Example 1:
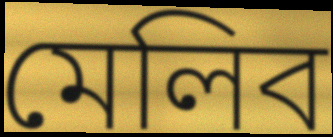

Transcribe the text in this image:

মেলিব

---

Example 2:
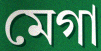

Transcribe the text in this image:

মেগা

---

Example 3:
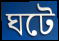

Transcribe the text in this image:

ঘটে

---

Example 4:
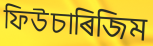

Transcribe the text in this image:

ফিউচাৰিজিম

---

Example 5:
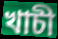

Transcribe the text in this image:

খাচী